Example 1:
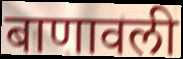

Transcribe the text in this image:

बाणावली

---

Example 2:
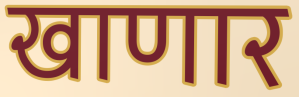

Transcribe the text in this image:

खाणार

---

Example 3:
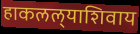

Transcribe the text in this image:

हाकलल्याशिवाय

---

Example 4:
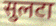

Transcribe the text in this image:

सुलटा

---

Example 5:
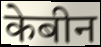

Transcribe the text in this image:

केबीन